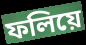
ফলিয়ে